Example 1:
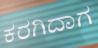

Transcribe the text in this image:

ಕರಗಿದಾಗ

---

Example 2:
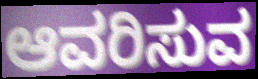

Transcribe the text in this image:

ಆವರಿಸುವ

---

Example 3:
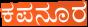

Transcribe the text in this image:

ಕಪನೂರ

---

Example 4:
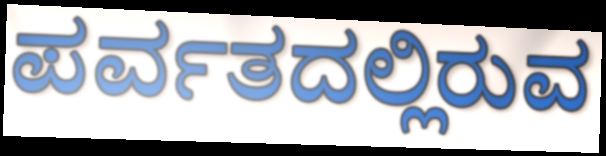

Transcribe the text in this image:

ಪರ್ವತದಲ್ಲಿರುವ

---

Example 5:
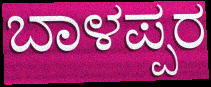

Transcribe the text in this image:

ಬಾಳಪ್ಪರ